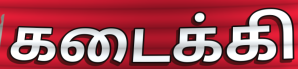
கடைக்கி